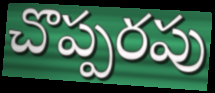
చొప్పరపు